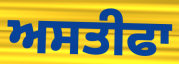
ਅਸਤੀਫਾ